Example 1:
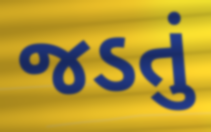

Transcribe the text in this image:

જડતું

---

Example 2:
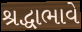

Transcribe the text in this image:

શ્રદ્ધાભાવે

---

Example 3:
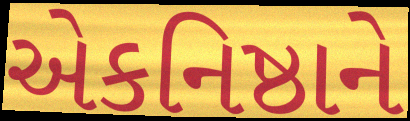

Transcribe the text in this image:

એકનિષ્ઠાને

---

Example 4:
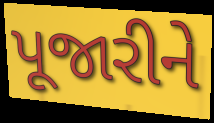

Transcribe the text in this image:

પૂજારીને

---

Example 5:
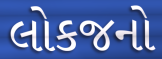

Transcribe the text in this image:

લોકજનો